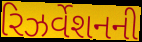
રિઝર્વેશનની